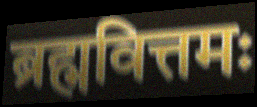
ब्रह्मवित्तमः